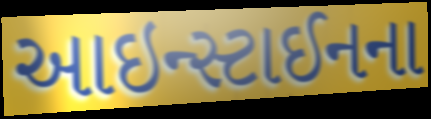
આઇન્સ્ટાઈનના